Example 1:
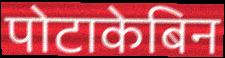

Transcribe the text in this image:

पोटाकेबिन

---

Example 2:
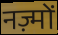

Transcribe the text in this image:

नज़्मों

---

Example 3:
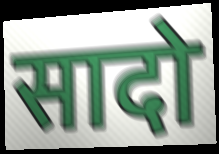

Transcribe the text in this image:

सादो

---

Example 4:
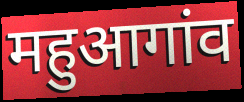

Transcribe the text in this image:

महुआगांव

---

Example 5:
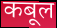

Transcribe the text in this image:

कबूल